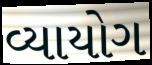
વ્યાયોગ